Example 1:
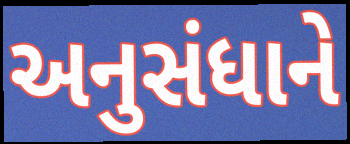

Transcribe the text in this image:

અનુસંધાને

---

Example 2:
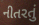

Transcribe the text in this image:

નીતરતું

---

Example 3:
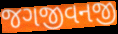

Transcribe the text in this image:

જગજીવનજી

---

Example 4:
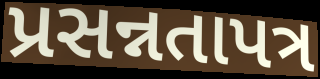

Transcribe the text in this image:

પ્રસન્નતાપત્ર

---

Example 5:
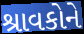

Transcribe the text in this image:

શ્રાવકોને